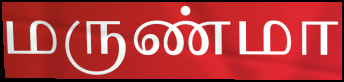
மருண்மா